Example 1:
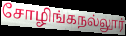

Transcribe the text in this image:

சோழிங்கநல்லூர்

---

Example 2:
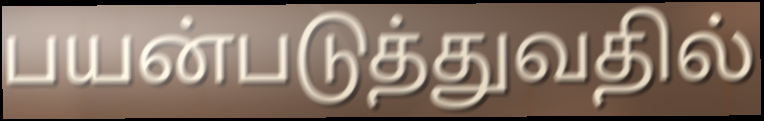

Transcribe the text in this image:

பயன்படுத்துவதில்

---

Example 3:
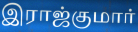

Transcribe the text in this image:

இராஜ்குமார்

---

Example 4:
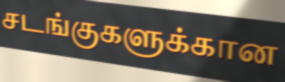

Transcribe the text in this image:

சடங்குகளுக்கான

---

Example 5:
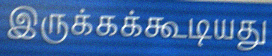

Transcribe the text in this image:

இருக்கக்கூடியது